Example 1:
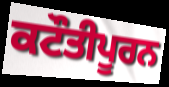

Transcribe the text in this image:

ਕਟੌਤੀਪੂਰਨ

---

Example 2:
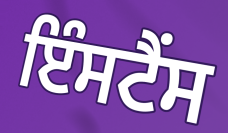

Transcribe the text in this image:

ਇੰਸਟੈਂਸ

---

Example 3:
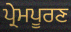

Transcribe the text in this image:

ਪ੍ਰੇਮਪੂਰਣ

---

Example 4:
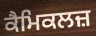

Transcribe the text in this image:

ਕੈਮਿਕਲਜ਼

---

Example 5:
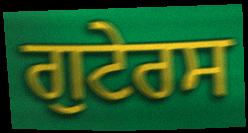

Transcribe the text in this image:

ਗੁਟੇਰਸ